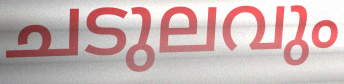
ചടുലവും